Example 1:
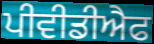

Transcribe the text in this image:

ਪੀਵੀਡੀਐਫ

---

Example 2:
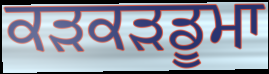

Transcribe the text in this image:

ਕੜਕੜਡੂਮਾ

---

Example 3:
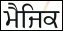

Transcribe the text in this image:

ਮੈਜਿਕ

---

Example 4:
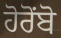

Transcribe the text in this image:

ਹੋਰੋਂਬੋ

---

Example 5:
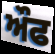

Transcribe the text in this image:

ਔਫ